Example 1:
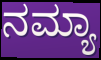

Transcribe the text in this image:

ನಮ್ಯಾ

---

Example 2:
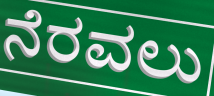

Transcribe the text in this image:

ನೆರವಲು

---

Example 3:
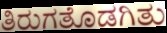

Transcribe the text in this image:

ತಿರುಗತೊಡಗಿತು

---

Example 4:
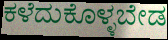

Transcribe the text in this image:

ಕಳೆದುಕೊಳ್ಳಬೇಡ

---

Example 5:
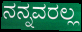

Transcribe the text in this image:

ನನ್ನವರಲ್ಲ